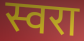
स्वरा